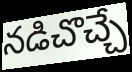
నడిచొచ్చే